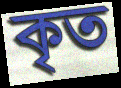
কৃত